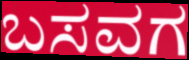
ಬಸವಗ